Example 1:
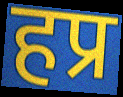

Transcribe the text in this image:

हप्र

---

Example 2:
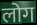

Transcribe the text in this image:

लोग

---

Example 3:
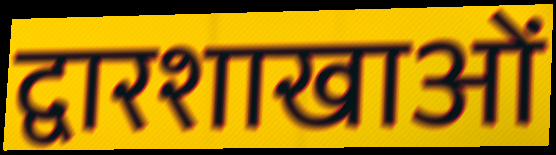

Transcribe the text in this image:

द्वारशाखाओं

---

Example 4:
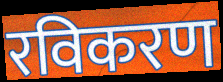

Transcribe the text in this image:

रविकरण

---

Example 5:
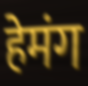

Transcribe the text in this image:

हेमंग